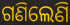
ଗଣିଲେଣି